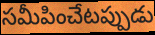
సమీపించేటప్పుడు